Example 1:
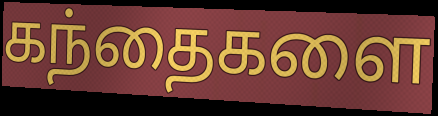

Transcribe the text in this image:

கந்தைகளை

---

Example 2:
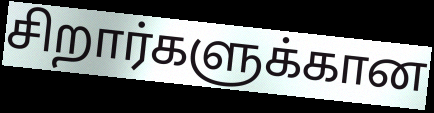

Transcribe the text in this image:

சிறார்களுக்கான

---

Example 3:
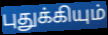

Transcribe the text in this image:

புதுக்கியும்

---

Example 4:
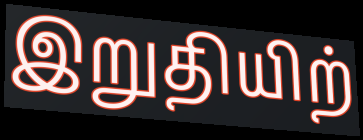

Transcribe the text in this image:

இறுதியிற்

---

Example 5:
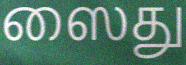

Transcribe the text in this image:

ஸைது